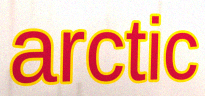
arctic